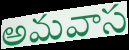
అమవాస